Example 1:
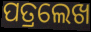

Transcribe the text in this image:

ପତ୍ରଲେଖ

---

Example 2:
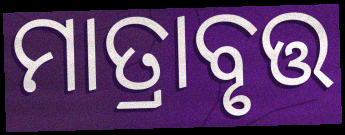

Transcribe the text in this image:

ମାତ୍ରାବୃତ୍ତ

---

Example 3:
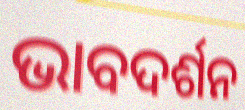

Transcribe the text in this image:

ଭାବଦର୍ଶନ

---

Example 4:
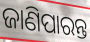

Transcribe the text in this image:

ଜାଣିପାରନ୍ତ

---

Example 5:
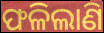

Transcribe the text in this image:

ଫଳିଲାଣି